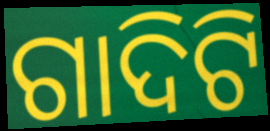
ଗାଦିଟି